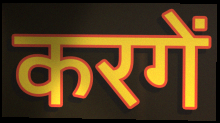
करगें